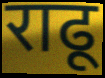
राढू